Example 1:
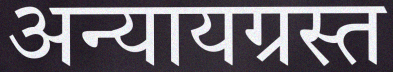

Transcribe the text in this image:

अन्यायग्रस्त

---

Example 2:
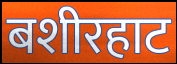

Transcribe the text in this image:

बशीरहाट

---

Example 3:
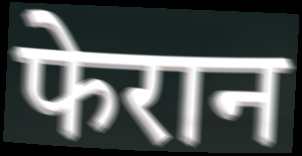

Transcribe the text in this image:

फेरान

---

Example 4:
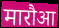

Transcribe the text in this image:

मारौआ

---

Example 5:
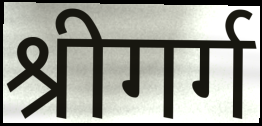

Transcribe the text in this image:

श्रीगर्ग